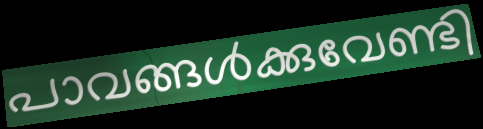
പാവങ്ങൾക്കുവേണ്ടി